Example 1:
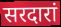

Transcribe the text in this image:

सरदारां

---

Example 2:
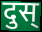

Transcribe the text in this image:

दुस्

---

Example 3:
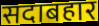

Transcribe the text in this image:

सदाबहार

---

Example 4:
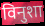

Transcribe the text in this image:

विनुशा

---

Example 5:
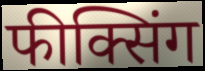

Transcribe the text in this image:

फीक्सिंग